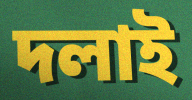
দলাই